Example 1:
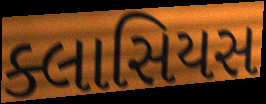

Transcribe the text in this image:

ક્લાસિયસ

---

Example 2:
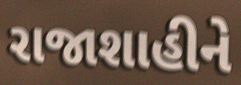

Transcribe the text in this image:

રાજાશાહીને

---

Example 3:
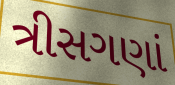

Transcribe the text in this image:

ત્રીસગણાં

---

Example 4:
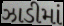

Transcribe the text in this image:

ઝાડીમાં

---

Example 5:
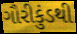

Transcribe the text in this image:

ગૌરીકુંડથી